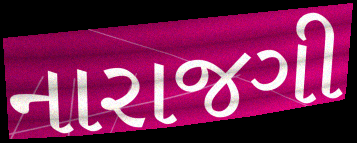
નારાજગી